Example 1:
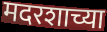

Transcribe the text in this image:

मदरशाच्या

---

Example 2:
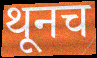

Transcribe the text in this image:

थूनच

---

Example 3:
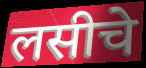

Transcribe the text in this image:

लसीचे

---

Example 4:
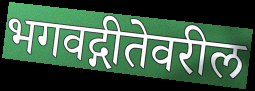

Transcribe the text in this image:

भगवद्गीतेवरील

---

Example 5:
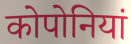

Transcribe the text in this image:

कोपोनियां